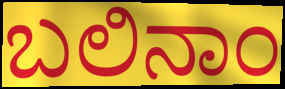
ಬಲಿನಾಂ